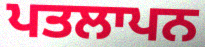
ਪਤਲਾਪਨ